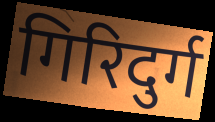
गिरिदुर्ग